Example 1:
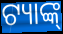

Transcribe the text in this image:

ଟ୍ୟାଙ୍କ୍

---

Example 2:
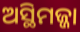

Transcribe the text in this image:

ଅସ୍ଥିମଜ୍ଜା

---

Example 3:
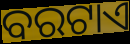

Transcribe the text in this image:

ବରଟାଏ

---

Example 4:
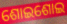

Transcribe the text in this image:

ଶୋଇଶୋଇ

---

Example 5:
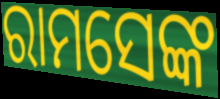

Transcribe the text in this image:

ରାମସେଙ୍କ